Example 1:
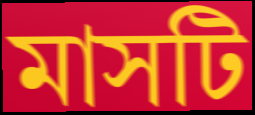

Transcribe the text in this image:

মাসটি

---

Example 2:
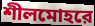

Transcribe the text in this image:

শীলমোহরে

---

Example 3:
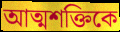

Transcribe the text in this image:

আত্মশক্তিকে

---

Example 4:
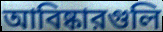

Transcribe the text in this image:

আবিষ্কারগুলি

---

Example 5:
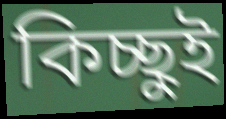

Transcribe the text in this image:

কিচ্ছুই